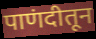
पाणंदीतून